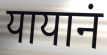
यायानं